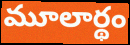
మూలార్థం